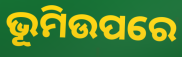
ଭୂମିଉପରେ